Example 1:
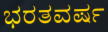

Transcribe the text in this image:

ಭರತವರ್ಷ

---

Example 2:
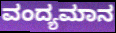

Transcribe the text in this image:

ವಂದ್ಯಮಾನ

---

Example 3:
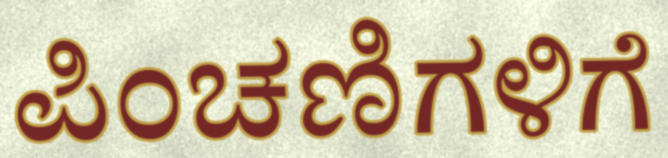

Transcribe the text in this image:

ಪಿಂಚಣಿಗಳಿಗೆ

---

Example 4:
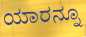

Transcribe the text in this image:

ಯಾರನ್ನೂ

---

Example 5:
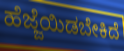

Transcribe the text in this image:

ಹೆಜ್ಜೆಯಿಡಬೇಕಿದೆ